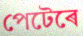
পেটেৰে